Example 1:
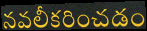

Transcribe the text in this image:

నవలీకరించడం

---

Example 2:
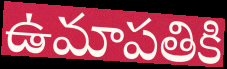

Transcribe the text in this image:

ఉమాపతికి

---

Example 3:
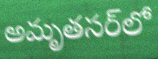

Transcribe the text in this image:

అమృతసర్‌లో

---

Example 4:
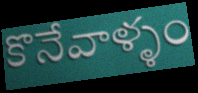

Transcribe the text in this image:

కొనేవాళ్ళం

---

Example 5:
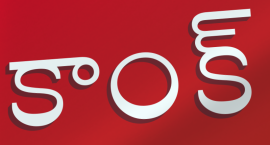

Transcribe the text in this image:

కాంక్